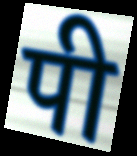
पी